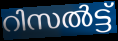
റിസൽട്ട്